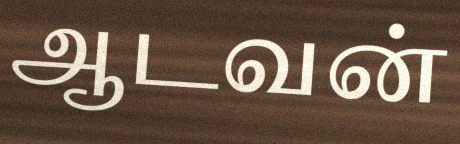
ஆடவன்